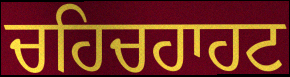
ਚਹਿਚਹਾਹਟ